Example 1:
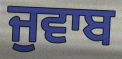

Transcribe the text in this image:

ਜੁਵਾਬ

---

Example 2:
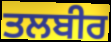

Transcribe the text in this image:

ਤਲਬੀਰ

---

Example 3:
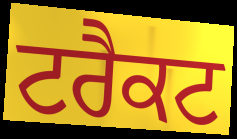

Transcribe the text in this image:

ਟਰੈਕਟ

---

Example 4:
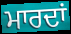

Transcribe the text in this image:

ਮਾਰਦਾਂ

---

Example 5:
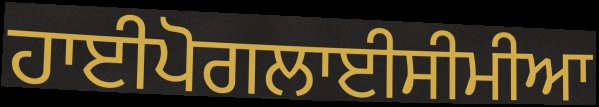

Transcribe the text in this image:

ਹਾਈਪੋਗਲਾਈਸੀਮੀਆ